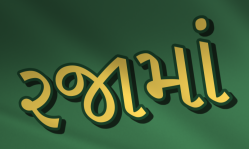
રજામાં